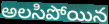
అలసిపోయిన